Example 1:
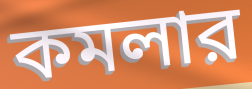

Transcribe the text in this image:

কমলার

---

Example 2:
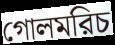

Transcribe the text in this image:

গোলমরিচ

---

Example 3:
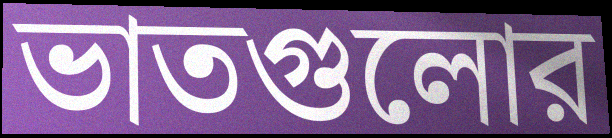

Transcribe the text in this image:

ভাতগুলোর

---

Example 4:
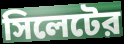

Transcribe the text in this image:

সিলেটের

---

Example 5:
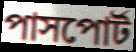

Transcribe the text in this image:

পাসপোর্ট